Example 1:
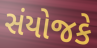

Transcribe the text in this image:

સંયોજકે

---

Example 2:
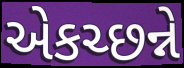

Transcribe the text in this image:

એકચ્છન્ને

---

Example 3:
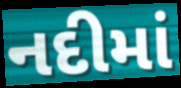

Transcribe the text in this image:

નદીમાં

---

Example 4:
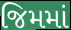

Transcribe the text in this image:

જિમમાં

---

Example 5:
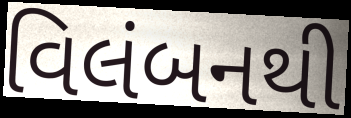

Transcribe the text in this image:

વિલંબનથી